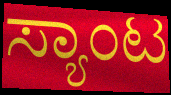
ಸ್ಯಾಂಟ